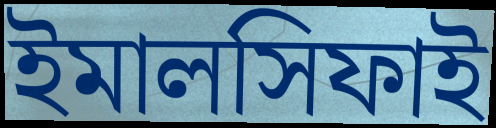
ইমালসিফাই